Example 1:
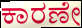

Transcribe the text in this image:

ಕಾರಣೇ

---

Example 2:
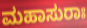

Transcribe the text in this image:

ಮಹಾಸುರಾಃ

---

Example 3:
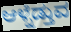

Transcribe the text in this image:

ಆಳ್ನೆಡ್ತುವ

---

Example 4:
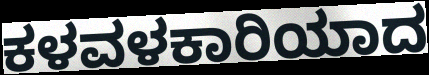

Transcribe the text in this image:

ಕಳವಳಕಾರಿಯಾದ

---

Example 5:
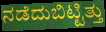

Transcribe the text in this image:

ನಡೆದುಬಿಟ್ಟಿತ್ತು